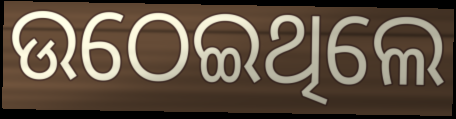
ଉଠେଇଥିଲେ